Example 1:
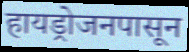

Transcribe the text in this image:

हायड्रोजनपासून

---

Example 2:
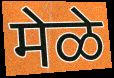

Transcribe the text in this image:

मेळे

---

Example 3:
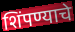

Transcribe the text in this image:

शिंपण्याचे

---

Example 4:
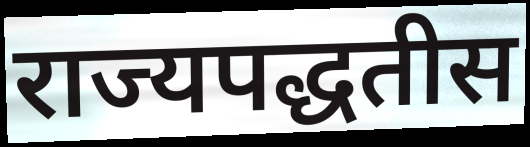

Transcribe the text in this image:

राज्यपद्धतीस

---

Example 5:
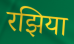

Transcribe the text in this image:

रझिया